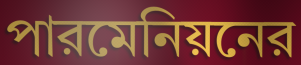
পারমেনিয়নের